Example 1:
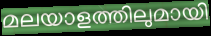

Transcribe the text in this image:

മലയാളത്തിലുമായി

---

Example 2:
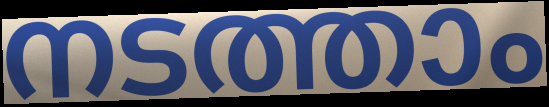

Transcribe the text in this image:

നടത്താം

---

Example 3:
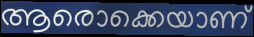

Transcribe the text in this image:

ആരൊക്കെയാണ്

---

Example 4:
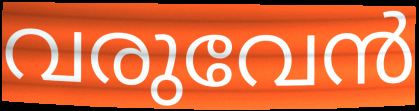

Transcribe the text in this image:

വരുവേൻ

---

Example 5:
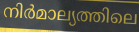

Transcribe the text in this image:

നിർമാല്യത്തിലെ